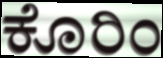
ಕೊರಿಂ